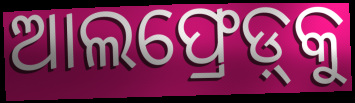
ଆଲଫ୍ରେଡ଼୍‍କୁ